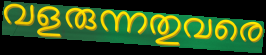
വളരുന്നതുവരെ